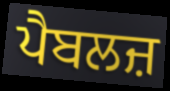
ਪੈਬਲਜ਼